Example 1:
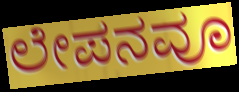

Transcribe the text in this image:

ಲೇಪನವೂ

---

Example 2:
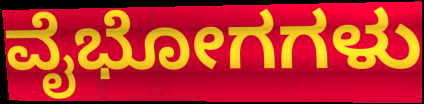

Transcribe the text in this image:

ವೈಭೋಗಗಳು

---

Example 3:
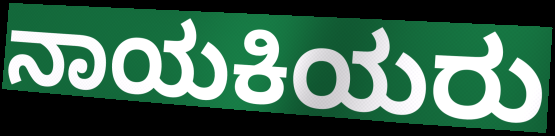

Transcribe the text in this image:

ನಾಯಕಿಯರು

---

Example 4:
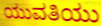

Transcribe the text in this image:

ಯುವತಿಯು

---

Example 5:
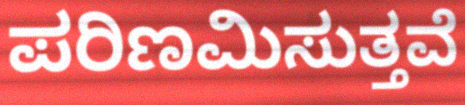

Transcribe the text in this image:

ಪರಿಣಮಿಸುತ್ತವೆ